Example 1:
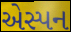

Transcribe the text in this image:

એસ્પન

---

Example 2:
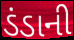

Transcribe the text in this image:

ડંડાની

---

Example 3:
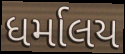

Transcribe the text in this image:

ધર્માલય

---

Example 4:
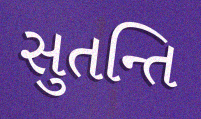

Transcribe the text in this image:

સુતન્તિ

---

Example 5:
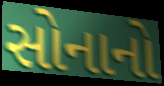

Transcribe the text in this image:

સોનાનો